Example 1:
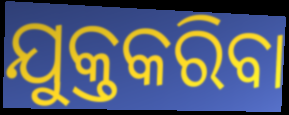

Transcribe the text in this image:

ଯୁକ୍ତକରିବା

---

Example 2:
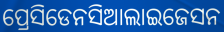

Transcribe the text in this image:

ପ୍ରେସିଡେନସିଆଲାଇଜେସନ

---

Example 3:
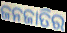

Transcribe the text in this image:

ଜନଜାତିର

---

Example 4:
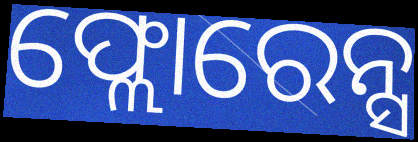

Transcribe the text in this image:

ଫ୍ଲୋରେନ୍ସ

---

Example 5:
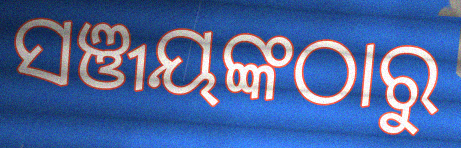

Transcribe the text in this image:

ସଞ୍ଜୟଙ୍କଠାରୁ